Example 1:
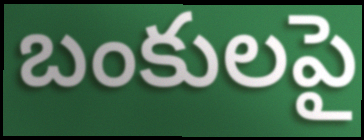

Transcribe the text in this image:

బంకులపై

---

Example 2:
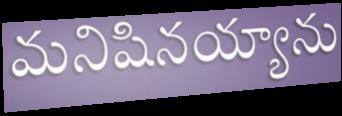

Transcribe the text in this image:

మనిషినయ్యాను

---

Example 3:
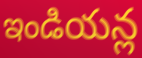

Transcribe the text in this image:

ఇండియన్ల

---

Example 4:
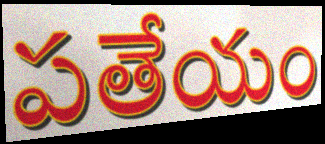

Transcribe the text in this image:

పతేయం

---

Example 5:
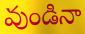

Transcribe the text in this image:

వుండినా